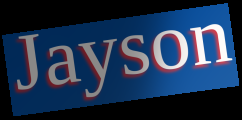
Jayson